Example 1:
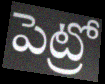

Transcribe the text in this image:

పెట్రో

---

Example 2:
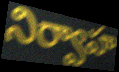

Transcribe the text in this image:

నిర్వాహ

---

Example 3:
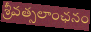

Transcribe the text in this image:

శ్రీవత్సలాంఛనం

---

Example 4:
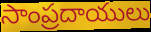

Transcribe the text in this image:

సాంప్రదాయులు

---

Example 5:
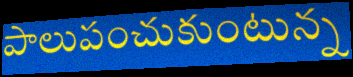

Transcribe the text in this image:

పాలుపంచుకుంటున్న